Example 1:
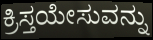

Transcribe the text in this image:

ಕ್ರಿಸ್ತಯೇಸುವನ್ನು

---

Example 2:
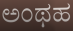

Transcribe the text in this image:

ಅಂಥಹ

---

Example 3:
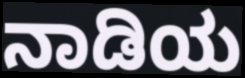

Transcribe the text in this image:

ನಾಡಿಯ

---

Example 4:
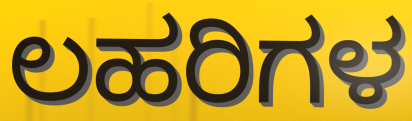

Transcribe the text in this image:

ಲಹರಿಗಳ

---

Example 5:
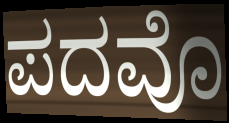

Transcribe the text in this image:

ಪದವೊ